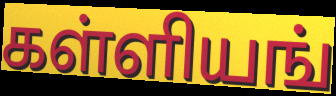
கள்ளியங்